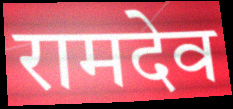
रामदेव